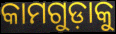
କାମଗୁଡ଼ାକୁ